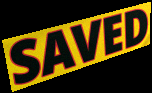
SAVED